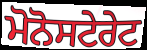
ਮੋਨੋਸਟੇਰੇਟ